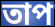
তাপ